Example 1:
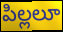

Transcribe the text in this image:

పిల్లలూ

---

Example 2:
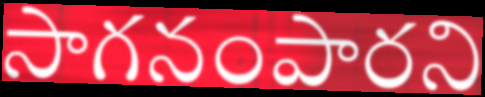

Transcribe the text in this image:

సాగనంపారని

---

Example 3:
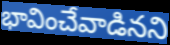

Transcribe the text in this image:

భావించేవాడినని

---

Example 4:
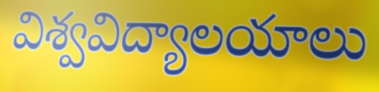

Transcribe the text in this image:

విశ్వవిద్యాలయాలు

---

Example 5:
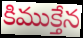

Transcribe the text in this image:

కిముక్తేన